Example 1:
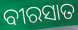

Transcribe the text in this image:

ବୀରସାତ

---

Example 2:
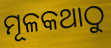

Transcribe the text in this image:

ମୂଳକଥାଠୁ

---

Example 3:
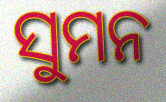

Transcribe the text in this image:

ସୁମନ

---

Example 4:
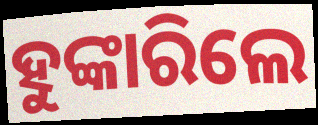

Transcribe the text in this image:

ହୁଙ୍କାରିଲେ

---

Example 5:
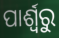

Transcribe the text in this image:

ପାର୍ଶ୍ଵରୁ